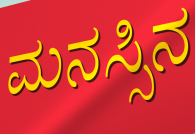
ಮನಸ್ಸಿನ